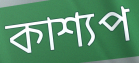
কাশ্যপ